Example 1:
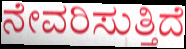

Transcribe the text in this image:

ನೇವರಿಸುತ್ತಿದೆ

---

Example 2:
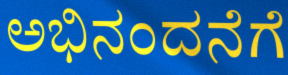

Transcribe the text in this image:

ಅಭಿನಂದನೆಗೆ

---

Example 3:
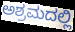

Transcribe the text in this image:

ಅಶ್ರಮದಲ್ಲಿ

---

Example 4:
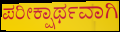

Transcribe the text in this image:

ಪರೀಕ್ಷಾರ್ಥವಾಗಿ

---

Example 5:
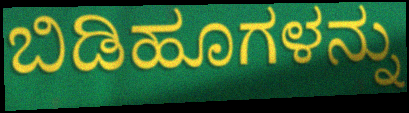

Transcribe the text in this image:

ಬಿಡಿಹೂಗಳನ್ನು